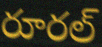
రూరల్